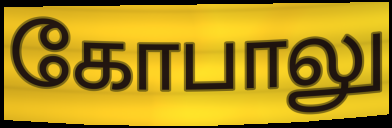
கோபாலு